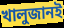
খালুজানই